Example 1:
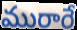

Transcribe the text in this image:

మురారే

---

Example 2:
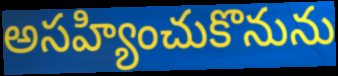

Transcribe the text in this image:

అసహ్యించుకొనును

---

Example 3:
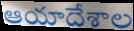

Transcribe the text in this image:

ఆయాదేశాల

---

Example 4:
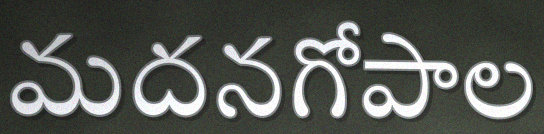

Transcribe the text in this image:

మదనగోపాల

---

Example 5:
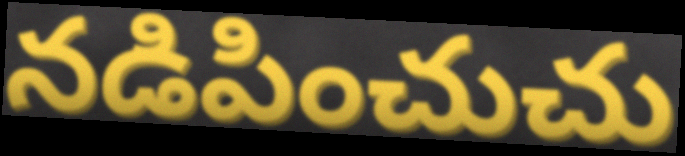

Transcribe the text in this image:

నడిపించుచు